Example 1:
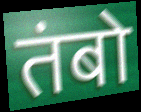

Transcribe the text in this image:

तंबो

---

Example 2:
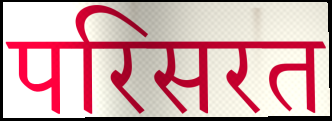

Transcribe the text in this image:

परिसरत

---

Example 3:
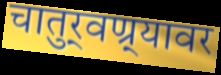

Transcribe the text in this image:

चातुर्वण्र्यावर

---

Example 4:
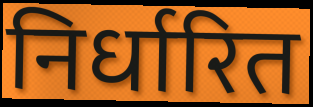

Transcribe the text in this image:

निर्धारित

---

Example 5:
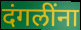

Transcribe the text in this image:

दंगलींना